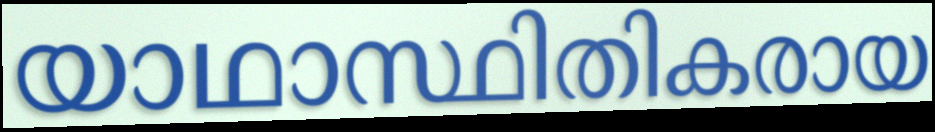
യാഥാസ്ഥിതികരായ